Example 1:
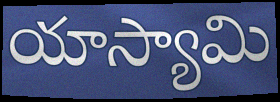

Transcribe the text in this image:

యాస్యామి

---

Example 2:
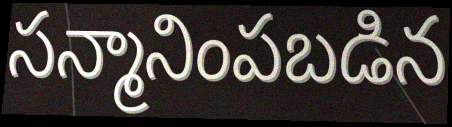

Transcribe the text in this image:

సన్మానింపబడిన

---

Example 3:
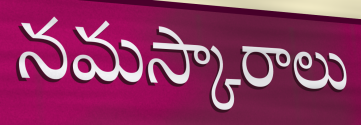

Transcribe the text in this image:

నమస్కారాలు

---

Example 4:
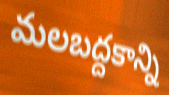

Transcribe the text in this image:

మలబద్దకాన్ని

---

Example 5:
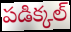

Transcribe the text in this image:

పడిక్కల్